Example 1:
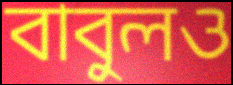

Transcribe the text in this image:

বাবুলও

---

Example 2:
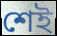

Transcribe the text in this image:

শেই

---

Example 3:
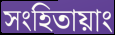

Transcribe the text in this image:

সংহিতায়াং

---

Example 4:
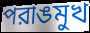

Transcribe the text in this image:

পরাঙমুখ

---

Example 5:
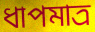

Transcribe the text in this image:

ধাপমাত্র